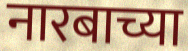
नारबाच्या